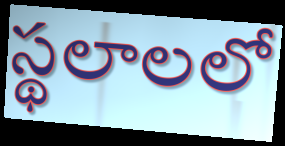
స్థలాలలో